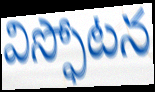
విస్ఫోటన